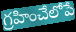
గ్రహించేలోపే